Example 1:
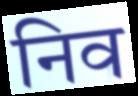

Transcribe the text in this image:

निव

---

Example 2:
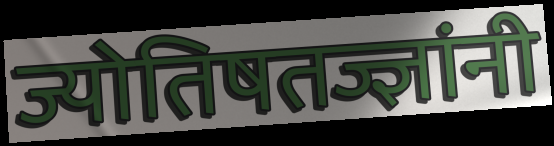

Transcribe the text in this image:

ज्योतिषतज्ज्ञांनी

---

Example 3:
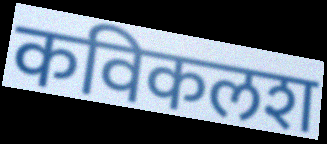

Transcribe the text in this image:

कविकलश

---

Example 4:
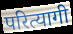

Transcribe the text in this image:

परित्यागी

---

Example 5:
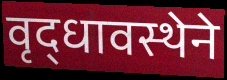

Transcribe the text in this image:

वृद्धावस्थेने